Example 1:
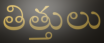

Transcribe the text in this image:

తిత్తులు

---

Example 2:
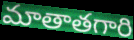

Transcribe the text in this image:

మాతాతగారి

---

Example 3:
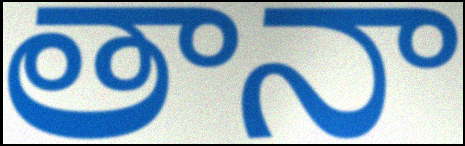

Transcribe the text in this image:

తానా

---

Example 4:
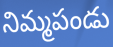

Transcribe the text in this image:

నిమ్మపండు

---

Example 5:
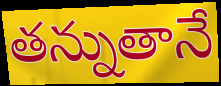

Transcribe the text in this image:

తన్నుతానే